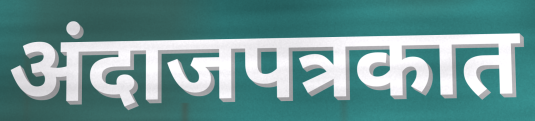
अंदाजपत्रकात